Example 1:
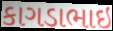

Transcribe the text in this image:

કાગડાભાઇ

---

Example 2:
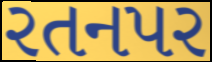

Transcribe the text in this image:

રતનપર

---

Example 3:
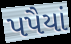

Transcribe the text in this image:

પપૈયાં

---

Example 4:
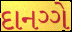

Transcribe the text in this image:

દાનગ્ગે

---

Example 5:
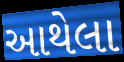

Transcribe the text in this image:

આથેલા